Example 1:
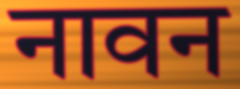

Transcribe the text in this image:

नावन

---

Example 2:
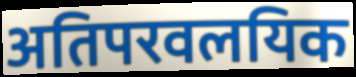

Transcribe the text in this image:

अतिपरवलयिक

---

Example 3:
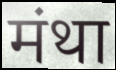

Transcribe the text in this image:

मंथा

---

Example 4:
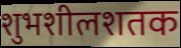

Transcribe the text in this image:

शुभशीलशतक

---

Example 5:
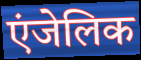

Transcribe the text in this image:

एंजेलिक